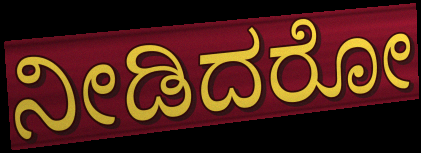
ನೀಡಿದರೋ